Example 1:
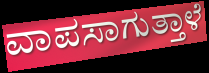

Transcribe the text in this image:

ವಾಪಸಾಗುತ್ತಾಳೆ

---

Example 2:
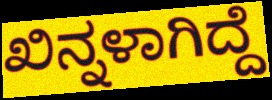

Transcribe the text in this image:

ಖಿನ್ನಳಾಗಿದ್ದೆ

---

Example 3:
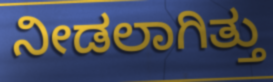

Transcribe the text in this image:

ನೀಡಲಾಗಿತ್ತು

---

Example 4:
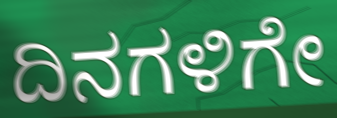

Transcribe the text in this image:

ದಿನಗಳಿಗೇ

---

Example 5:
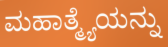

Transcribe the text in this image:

ಮಹಾತ್ಮ್ಯೆಯನ್ನು